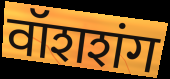
वॉशशंग